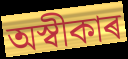
অস্বীকাৰ